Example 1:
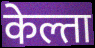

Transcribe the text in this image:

केल्ता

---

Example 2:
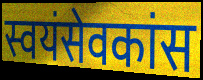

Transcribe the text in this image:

स्वयंसेवकांस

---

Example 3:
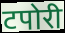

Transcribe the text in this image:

टपोरी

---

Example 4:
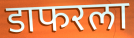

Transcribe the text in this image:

डाफरला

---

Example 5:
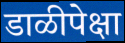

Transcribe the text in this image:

डाळीपेक्षा